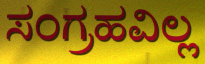
ಸಂಗ್ರಹವಿಲ್ಲ